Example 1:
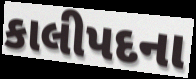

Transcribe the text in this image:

કાલીપદના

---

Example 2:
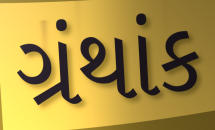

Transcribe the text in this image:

ગ્રંથાંક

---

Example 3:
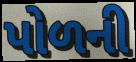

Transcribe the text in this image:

પોળની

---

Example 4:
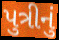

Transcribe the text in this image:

પુત્રીનું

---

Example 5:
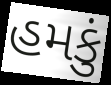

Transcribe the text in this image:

હમકું